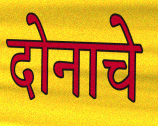
दोनाचे